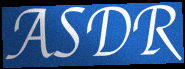
ASDR